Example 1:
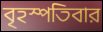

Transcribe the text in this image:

বৃহস্পতিবার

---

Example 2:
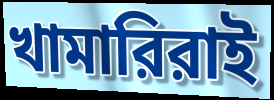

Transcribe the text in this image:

খামারিরাই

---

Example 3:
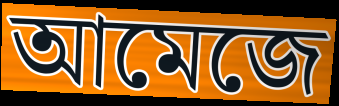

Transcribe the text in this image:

আমেজে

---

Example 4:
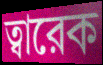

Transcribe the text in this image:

ত্বারেক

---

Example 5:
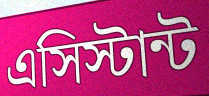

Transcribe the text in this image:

এসিস্টান্ট